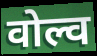
वोल्व